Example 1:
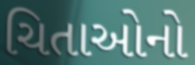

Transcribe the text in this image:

ચિતાઓનો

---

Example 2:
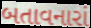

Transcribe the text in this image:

બતાવનારાં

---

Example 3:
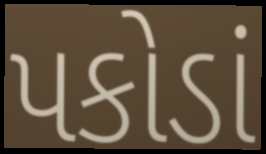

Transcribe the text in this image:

પકોડાં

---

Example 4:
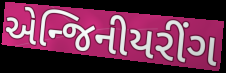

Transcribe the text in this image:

એન્જિનીયરીંગ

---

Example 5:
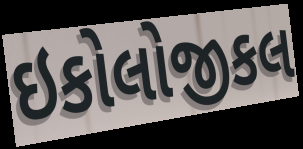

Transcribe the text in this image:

ઇકોલોજીકલ